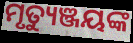
ମୃତ୍ୟୁଞ୍ଜୟଙ୍କ